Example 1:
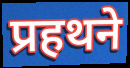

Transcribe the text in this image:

प्रहथने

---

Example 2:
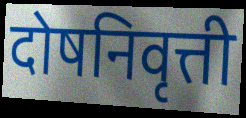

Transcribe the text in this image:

दोषनिवृत्ती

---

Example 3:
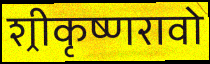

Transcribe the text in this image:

श्रीकृष्णरावो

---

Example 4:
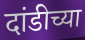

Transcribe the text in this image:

दांडीच्या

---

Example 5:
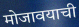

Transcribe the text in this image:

मोजावयाची